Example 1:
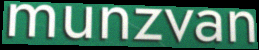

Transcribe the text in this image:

munzvan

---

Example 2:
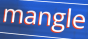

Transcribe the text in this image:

mangle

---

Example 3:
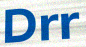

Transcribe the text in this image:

Drr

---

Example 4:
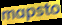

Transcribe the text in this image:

mapsto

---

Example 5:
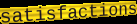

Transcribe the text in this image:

satisfactions